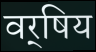
वर्षिय